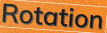
Rotation